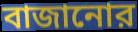
বাজানোর